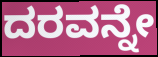
ದರವನ್ನೇ